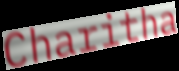
Charitha